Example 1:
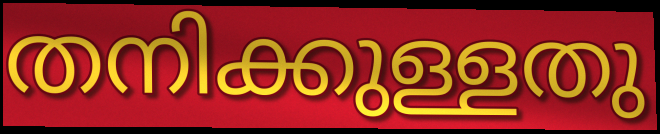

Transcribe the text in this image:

തനിക്കുള്ളതു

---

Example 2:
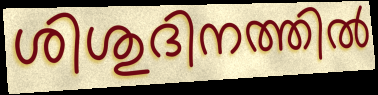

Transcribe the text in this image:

ശിശുദിനത്തിൽ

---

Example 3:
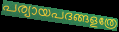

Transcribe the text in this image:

പര്യായപദങ്ങളത്രേ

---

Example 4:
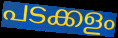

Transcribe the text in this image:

പടക്കളം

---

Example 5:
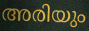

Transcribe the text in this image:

അരിയും